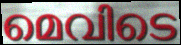
മെവിടെ